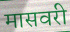
मासवरी